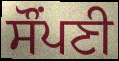
ਸੌਂਪਣੀ